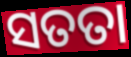
ସତତା